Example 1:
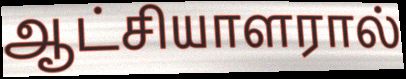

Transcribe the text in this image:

ஆட்சியாளரால்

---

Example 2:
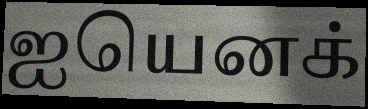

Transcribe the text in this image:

ஐயெனக்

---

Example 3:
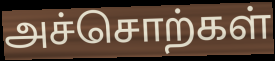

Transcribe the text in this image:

அச்சொற்கள்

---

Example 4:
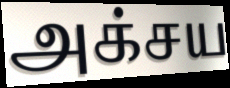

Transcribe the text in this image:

அக்சய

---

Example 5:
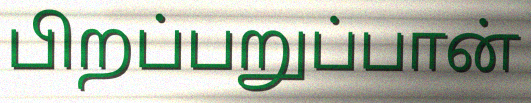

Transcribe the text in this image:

பிறப்பறுப்பான்